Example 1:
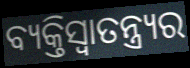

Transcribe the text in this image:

ବ୍ୟକ୍ତିସ୍ୱାତନ୍ତ୍ର୍ୟର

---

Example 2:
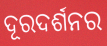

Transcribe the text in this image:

ଦୂରଦର୍ଶନର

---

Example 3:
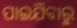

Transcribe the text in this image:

ପାଇଯିବାରୁ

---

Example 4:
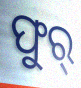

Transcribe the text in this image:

ଫୁର୍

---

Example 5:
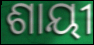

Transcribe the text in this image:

ଶାୟୀ